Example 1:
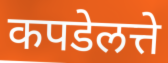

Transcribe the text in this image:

कपडेलत्ते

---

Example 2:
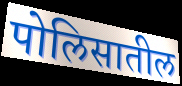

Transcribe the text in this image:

पोलिसातील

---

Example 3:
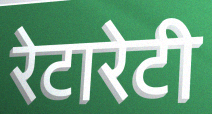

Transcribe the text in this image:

रेटारेटी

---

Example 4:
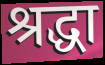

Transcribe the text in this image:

श्रद्धा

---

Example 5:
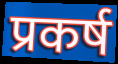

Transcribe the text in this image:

प्रकर्ष